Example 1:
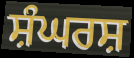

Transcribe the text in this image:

ਸ਼ੰਘਰਸ਼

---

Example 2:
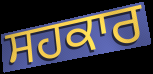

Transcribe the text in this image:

ਸਹਕਾਰ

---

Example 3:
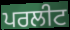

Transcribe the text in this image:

ਪਰਲੀਟ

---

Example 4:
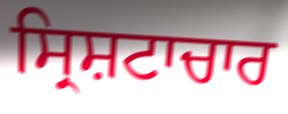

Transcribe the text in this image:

ਸ੍ਰਿਸ਼ਟਾਚਾਰ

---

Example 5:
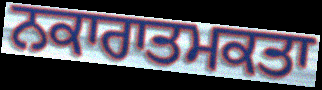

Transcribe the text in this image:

ਨਕਾਰਾਤਮਕਤਾ